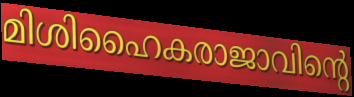
മിശിഹൈകരാജാവിന്റെ